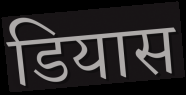
डियास